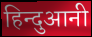
हिन्दुआनी